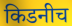
किडनीच